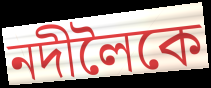
নদীলৈকে